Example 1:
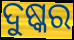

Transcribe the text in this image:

ଦୁଷ୍କର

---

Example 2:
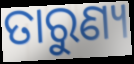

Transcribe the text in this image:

ତାରୁଣ୍ୟ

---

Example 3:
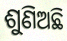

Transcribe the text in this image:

ଶୁଣିଅଛି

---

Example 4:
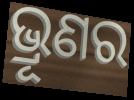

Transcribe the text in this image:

ଭ୍ରୂଣର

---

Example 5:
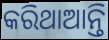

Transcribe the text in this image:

କରିଥାଆନ୍ତି